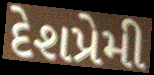
દેશપ્રેમી